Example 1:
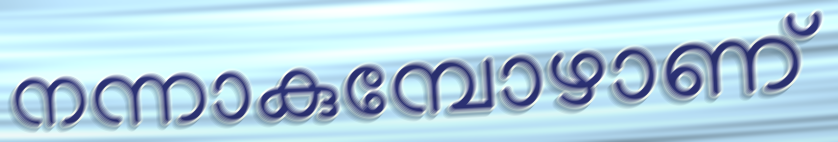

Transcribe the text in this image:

നന്നാകുമ്പോഴാണ്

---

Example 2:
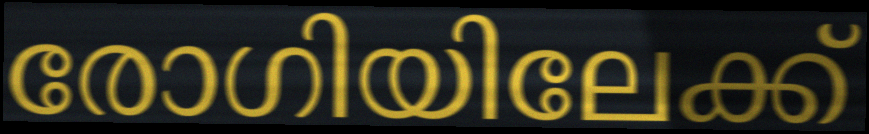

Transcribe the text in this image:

രോഗിയിലേക്ക്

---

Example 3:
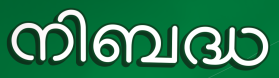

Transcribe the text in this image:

നിബദ്ധ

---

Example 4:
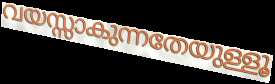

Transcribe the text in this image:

വയസ്സാകുന്നതേയുള്ളൂ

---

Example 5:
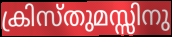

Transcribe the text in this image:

ക്രിസ്തുമസ്സിനു